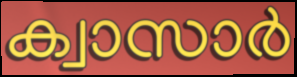
ക്വാസാർ